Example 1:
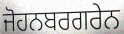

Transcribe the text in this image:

ਜੋਹਨਬਰਗਰੇਨ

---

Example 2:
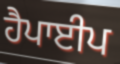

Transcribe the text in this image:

ਹੈਪਾਈਪ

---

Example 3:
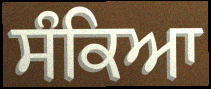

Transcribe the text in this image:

ਸੰਕਿਆ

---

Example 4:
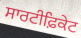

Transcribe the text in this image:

ਸਾਰਟੀਫ਼ਿਕੇਟ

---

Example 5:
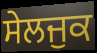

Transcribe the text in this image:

ਸੇਲਜੁਕ